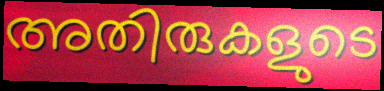
അതിരുകളുടെ